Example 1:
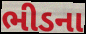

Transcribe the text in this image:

ભીડના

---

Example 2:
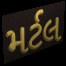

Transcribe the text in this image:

મર્ટલ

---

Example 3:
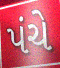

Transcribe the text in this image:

પંચે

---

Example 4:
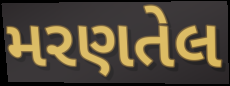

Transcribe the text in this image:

મરણતેલ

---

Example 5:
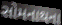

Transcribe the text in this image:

સોમનાથના